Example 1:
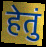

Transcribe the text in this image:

हेतुं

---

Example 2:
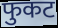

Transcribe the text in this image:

फुकट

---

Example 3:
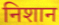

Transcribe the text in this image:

निशान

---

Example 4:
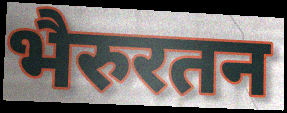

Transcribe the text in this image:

भैरुरतन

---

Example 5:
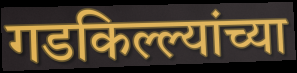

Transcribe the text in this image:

गडकिल्ल्यांच्या